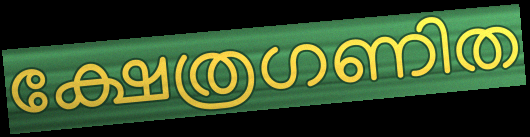
ക്ഷേത്രഗണിത